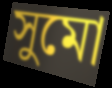
সুমো